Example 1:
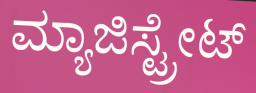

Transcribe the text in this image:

ಮ್ಯಾಜಿಸ್ಟ್ರೇಟ್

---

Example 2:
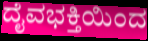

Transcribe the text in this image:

ದೈವಭಕ್ತಿಯಿಂದ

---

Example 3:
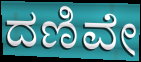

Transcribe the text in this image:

ದಣಿವೇ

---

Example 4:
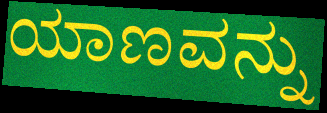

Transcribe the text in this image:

ಯಾಣವನ್ನು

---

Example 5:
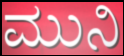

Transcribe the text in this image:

ಮುನಿ